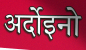
अर्दोइनो